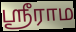
ஸ்ரீராம